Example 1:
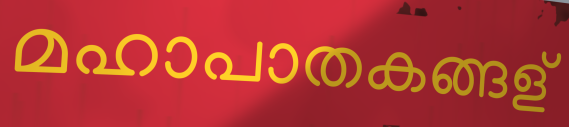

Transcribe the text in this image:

മഹാപാതകങ്ങള്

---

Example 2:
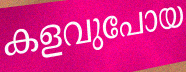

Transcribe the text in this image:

കളവുപോയ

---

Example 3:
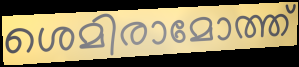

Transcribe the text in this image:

ശെമിരാമോത്ത്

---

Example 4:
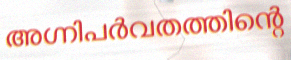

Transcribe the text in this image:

അഗ്നിപർവതത്തിന്റെ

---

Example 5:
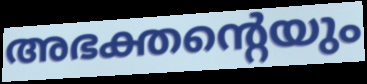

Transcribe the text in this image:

അഭക്തന്റെയും